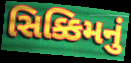
સિક્કિમનું